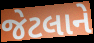
જેટલાને